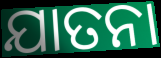
ଯାତନା